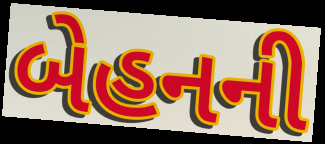
બેહનની